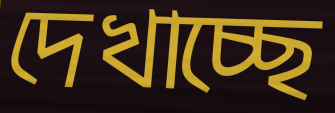
দেখাচ্ছে